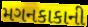
મગનકાકાની